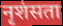
नृशंसता